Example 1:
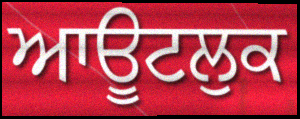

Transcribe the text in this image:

ਆਊਟਲੁਕ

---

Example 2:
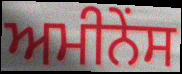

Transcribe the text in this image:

ਅਮੀਨੇਂਸ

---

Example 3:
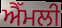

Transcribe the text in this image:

ਐੱਮਲੀ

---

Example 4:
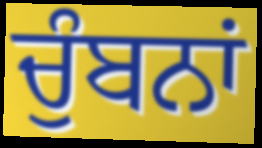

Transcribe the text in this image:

ਚੁੰਬਨਾਂ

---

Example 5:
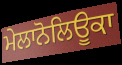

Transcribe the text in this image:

ਮੇਲਾਨੋਲਿਊਕਾ